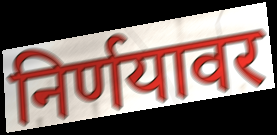
निर्णयावर